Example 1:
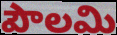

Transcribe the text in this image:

పౌలమి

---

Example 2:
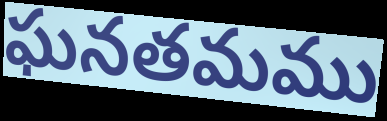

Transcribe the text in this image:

ఘనతమము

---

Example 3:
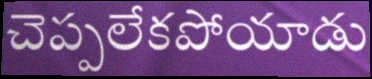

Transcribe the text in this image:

చెప్పలేకపోయాడు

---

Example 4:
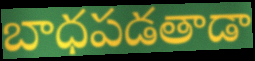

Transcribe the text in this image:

బాధపడతాడా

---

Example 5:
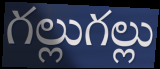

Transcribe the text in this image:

గల్లుగల్లు